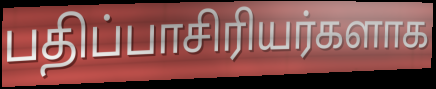
பதிப்பாசிரியர்களாக